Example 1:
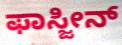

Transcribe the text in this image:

ಫಾಸ್ಜೀನ್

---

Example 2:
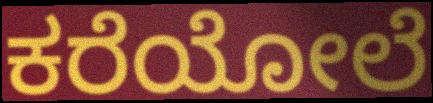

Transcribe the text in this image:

ಕರೆಯೋಲೆ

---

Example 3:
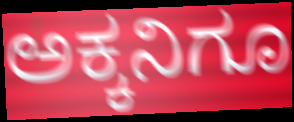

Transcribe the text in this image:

ಅಕ್ಕನಿಗೂ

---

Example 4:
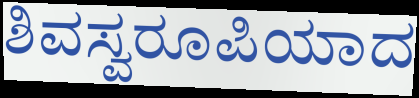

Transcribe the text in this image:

ಶಿವಸ್ವರೂಪಿಯಾದ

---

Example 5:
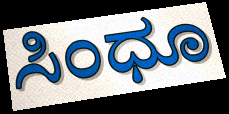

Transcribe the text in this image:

ಸಿಂಧೂ